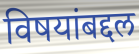
विषयांबद्दल